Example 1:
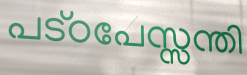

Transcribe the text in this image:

പട്ഠപേസ്സന്തി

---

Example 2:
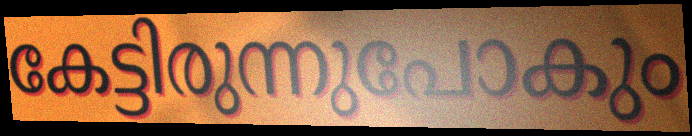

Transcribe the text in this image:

കേട്ടിരുന്നുപോകും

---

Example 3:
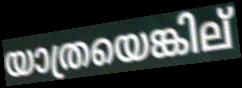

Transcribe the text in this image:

യാത്രയെങ്കില്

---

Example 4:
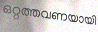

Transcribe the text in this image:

ഒറ്റത്തവണയായി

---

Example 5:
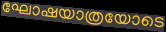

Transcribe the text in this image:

ഘോഷയാത്രയോടെ